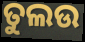
ତୁଲଉ